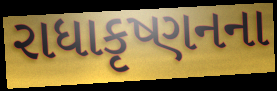
રાધાકૃષ્ણનના